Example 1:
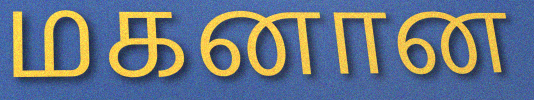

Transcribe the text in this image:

மகனான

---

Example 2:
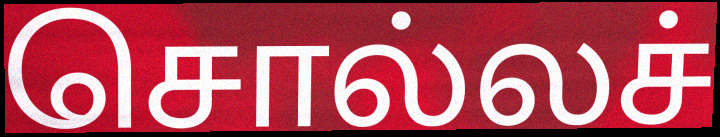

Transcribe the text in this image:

சொல்லச்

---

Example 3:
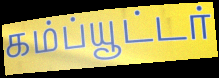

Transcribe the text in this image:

கம்ப்யூட்டர்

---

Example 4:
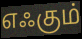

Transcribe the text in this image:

எஃகும்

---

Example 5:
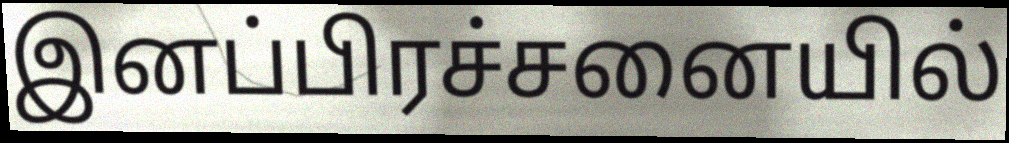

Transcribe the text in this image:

இனப்பிரச்சனையில்